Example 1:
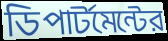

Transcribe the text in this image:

ডিপার্টমেন্টের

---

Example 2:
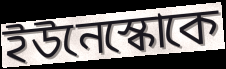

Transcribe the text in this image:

ইউনেস্কোকে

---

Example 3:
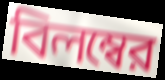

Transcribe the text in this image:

বিলম্বের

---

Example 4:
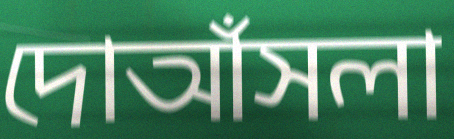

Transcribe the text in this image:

দোআঁসলা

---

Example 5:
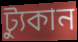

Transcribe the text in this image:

ট্যুকান